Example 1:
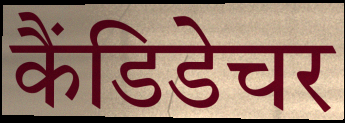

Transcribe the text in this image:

कैंडिडेचर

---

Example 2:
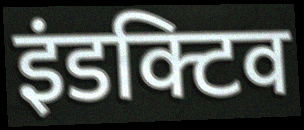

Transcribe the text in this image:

इंडक्टिव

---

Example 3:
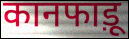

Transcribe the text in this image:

कानफाड़ू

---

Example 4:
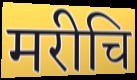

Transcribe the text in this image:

मरीचि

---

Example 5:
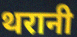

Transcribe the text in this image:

थरानी